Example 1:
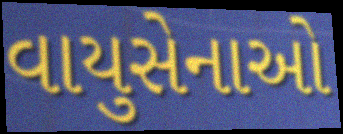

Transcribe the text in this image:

વાયુસેનાઓ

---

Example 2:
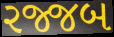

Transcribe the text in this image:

રજ્જબ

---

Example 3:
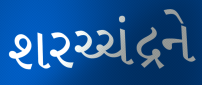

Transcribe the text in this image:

શરચ્ચંદ્રને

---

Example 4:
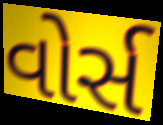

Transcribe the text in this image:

વોર્સ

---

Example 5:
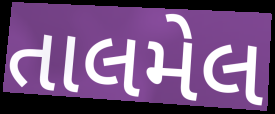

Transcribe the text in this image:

તાલમેલ